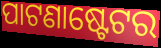
ପାଟଣାଷ୍ଟେଟର